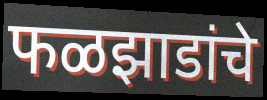
फळझाडांचे